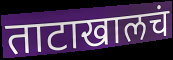
ताटाखालचं